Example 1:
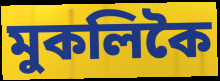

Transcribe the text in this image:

মুকলিকৈ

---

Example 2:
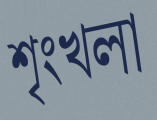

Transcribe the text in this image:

শৃংখলা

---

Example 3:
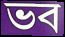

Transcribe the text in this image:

ভব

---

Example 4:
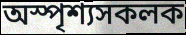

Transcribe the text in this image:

অস্পৃশ্যসকলক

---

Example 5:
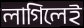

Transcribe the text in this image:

লাগিলেই